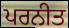
ਪਰਨੀਤ